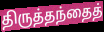
திருத்தந்தைத்